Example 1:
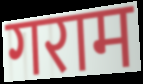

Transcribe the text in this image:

गराम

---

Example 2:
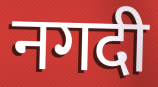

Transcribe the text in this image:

नगदी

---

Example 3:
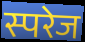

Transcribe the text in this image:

स्परेज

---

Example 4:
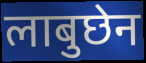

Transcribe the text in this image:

लाबुछेन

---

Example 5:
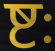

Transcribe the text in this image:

ष्टः